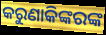
କରୁଣାକିଙ୍କରଙ୍କ